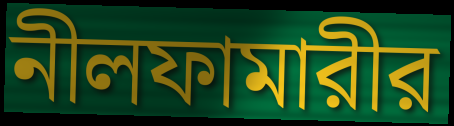
নীলফামারীর